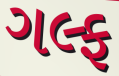
ગલ્ફ